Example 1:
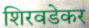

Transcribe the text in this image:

शिरवडेकर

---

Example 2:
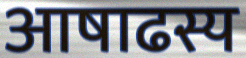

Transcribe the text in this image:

आषाढस्य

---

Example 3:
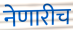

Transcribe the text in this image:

नेणारीच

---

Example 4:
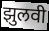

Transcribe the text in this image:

झुलवी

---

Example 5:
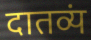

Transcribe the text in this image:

दातव्यं